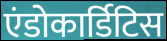
एंडोकार्डिटिस